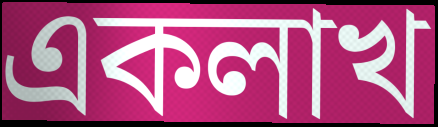
একলাখ